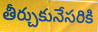
తీర్చుకునేసరికి